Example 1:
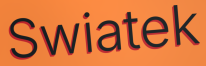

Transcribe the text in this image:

Swiatek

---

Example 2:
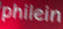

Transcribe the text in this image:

philein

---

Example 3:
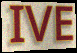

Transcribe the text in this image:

IVE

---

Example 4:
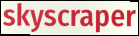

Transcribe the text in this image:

skyscraper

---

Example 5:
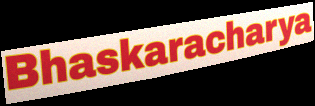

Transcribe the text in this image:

Bhaskaracharya